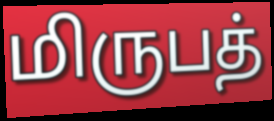
மிருபத்